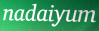
nadaiyum